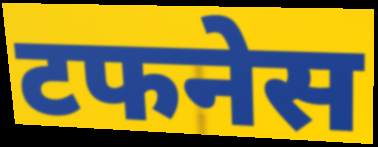
टफनेस